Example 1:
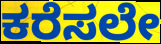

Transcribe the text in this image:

ಕರೆಸಲೇ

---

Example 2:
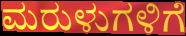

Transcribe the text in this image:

ಮರುಳುಗಳಿಗೆ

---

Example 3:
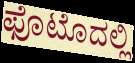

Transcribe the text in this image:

ಫೊಟೊದಲ್ಲಿ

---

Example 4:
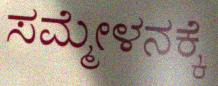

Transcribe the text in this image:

ಸಮ್ಮೇಳನಕ್ಕೆ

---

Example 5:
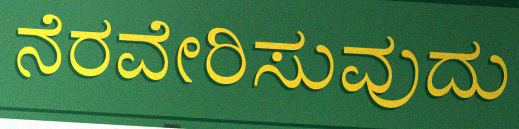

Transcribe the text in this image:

ನೆರವೇರಿಸುವುದು